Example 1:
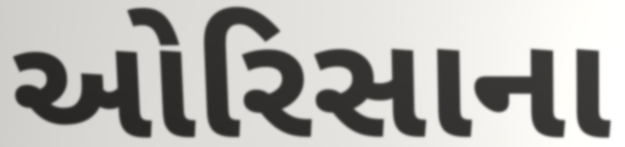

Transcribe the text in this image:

ઓરિસાના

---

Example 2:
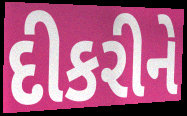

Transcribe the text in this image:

દીકરીને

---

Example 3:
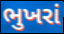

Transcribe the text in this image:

ભુખરાં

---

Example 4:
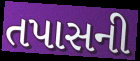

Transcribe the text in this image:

તપાસની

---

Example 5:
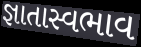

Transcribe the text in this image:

જ્ઞાતાસ્વભાવ